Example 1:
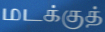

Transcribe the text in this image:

மடக்குத்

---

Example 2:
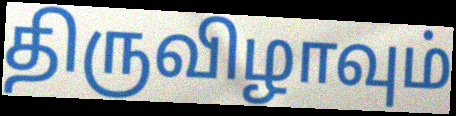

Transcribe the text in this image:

திருவிழாவும்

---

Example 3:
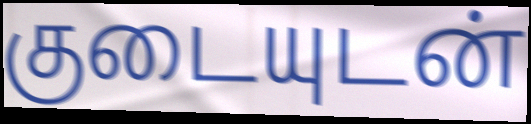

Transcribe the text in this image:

குடையுடன்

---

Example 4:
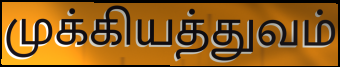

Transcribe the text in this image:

முக்கியத்துவம்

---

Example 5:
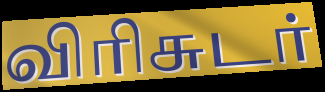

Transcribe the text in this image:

விரிசுடர்